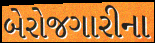
બેરોજગારીના